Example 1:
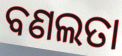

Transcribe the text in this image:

ବଣଲତା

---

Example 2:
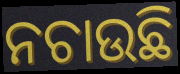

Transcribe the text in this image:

ନଚାଉଛି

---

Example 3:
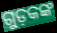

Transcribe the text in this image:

ଗୁଡ଼କଙ୍କ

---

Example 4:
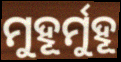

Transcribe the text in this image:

ମୁହୂର୍ମୁହୂ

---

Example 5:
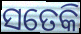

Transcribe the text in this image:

ସତେକି